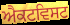
ਐਕਟਵਿਸਟ